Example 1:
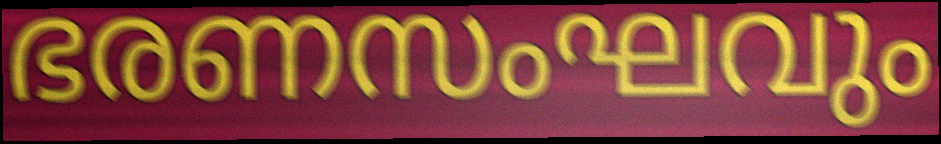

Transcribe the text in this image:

ഭരണസംഘവും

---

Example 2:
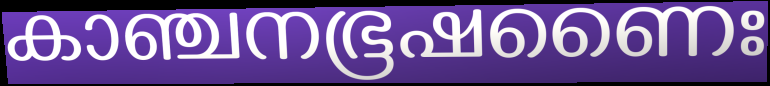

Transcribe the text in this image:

കാഞ്ചനഭൂഷണൈഃ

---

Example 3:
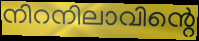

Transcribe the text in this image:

നിറനിലാവിന്റെ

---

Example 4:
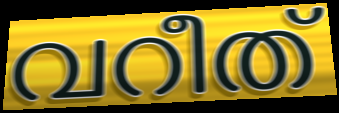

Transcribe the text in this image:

വറീത്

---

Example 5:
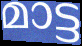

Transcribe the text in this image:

മാട്ട